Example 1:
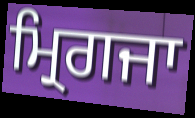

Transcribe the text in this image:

ਮ੍ਰਿਗਜਾ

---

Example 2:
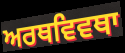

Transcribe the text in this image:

ਅਰਥਵਿਵਥਾ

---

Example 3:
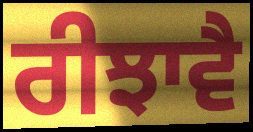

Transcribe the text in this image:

ਰੀਝਾਵੈ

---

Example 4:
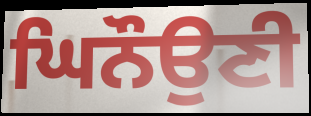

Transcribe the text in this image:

ਘਿਨੌਉਣੀ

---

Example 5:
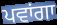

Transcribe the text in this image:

ਪਵਾਂਗਾ